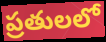
ప్రతులలో